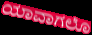
ಯಾವಾಗಲೊ